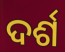
ଦର୍ଶ